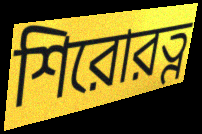
শিরোরত্ন